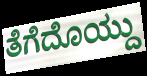
ತೆಗೆದೊಯ್ದು